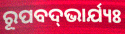
ରୂପବଦ୍‌ଭାର୍ଯ୍ୟଃ